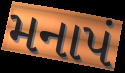
મનાપં